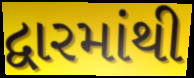
દ્વારમાંથી